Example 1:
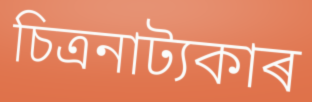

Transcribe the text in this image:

চিত্ৰনাট্যকাৰ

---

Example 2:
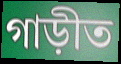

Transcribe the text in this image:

গাড়ীত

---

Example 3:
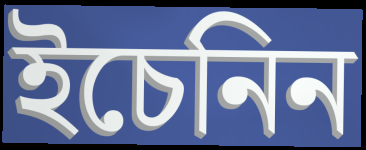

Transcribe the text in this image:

ইচেনিন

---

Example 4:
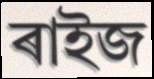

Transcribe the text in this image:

ৰাইজ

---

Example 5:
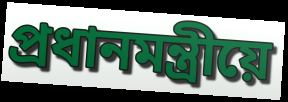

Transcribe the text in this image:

প্ৰধানমন্ত্ৰীয়ে